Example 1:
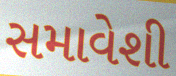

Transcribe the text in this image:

સમાવેશી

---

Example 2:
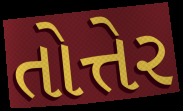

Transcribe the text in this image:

તોત્તેર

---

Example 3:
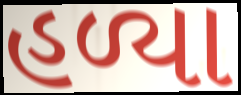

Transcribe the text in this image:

હળ્યા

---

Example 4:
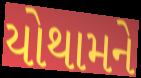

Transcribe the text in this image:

યોથામને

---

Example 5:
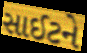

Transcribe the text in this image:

સાઈટને